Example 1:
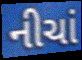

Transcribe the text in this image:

નીચાં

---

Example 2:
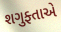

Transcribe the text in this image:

શગુફ્તાએ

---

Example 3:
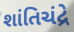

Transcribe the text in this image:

શાંતિચંદ્રે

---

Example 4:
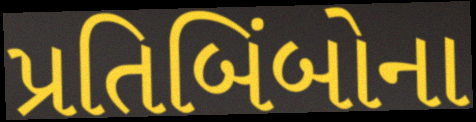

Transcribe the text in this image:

પ્રતિબિંબોના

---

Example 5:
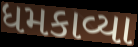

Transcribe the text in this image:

ધમકાવ્યા